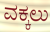
ವಕ್ಕಲು